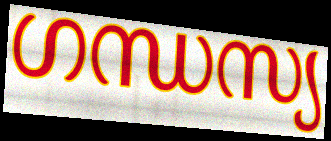
ഗന്ധസ്യ